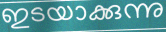
ഇടയാക്കുന്നു